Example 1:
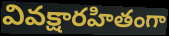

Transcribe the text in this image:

వివక్షారహితంగా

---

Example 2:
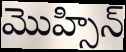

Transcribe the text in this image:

మొహ్సిన్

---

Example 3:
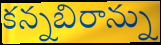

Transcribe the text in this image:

కన్నబిరాన్ను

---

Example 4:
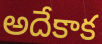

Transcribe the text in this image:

అదేకాక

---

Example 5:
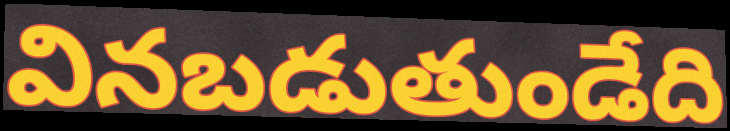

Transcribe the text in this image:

వినబడుతుండేది